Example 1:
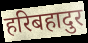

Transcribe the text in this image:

हरिबहादुर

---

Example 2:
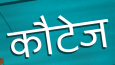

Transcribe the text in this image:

कौटेज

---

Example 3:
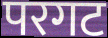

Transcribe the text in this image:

परगट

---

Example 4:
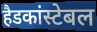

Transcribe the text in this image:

हैडकांस्टेबल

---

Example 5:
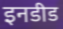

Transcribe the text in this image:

इनडीड